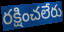
రక్షించలేరు